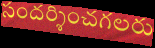
సందర్శించగలరు